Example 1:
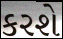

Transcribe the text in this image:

કરશે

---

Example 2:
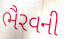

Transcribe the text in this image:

ભૈરવની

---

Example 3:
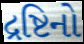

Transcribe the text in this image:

દ્રષ્ટિનો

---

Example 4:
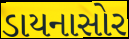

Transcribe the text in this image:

ડાયનાસોર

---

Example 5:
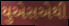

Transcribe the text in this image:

યુએસએથી